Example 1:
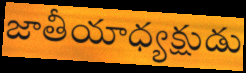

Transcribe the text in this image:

జాతీయాధ్యక్షుడు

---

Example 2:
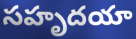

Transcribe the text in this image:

సహృదయా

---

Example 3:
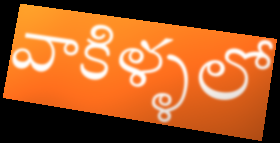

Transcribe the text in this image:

వాకిళ్ళలో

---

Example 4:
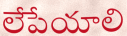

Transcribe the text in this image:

లేపేయాలి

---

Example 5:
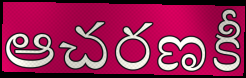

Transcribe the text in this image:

ఆచరణకీ